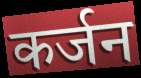
कर्जन